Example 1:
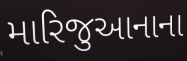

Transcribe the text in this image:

મારિજુઆનાના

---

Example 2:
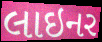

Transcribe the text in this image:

લાઇનર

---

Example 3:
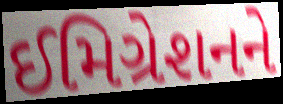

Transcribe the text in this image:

ઈમિગ્રેશનને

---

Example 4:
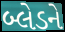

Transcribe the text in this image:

બ્લેડને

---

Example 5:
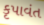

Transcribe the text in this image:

કૃપાવંત